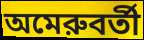
অমেরুবর্তী